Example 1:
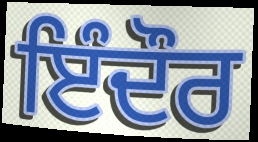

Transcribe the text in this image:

ਇੰਦੌਰ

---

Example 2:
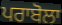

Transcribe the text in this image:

ਪਰਾਬੋਲਾ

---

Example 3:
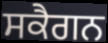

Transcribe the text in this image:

ਸਕੈਗਨ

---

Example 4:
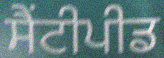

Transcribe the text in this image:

ਸੈਂਟੀਪੀਡ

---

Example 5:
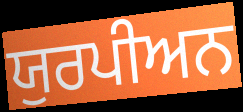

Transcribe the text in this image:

ਯੁਰਪੀਅਨ